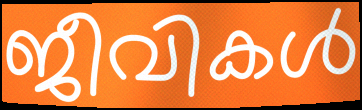
ജീവികൾ